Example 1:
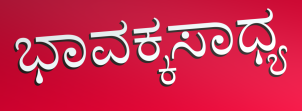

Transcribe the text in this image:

ಭಾವಕ್ಕಸಾಧ್ಯ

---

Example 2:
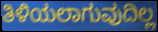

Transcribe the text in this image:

ತಿಳಿಯಲಾಗುವುದಿಲ್ಲ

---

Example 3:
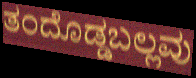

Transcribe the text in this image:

ತಂದೊಡ್ಡಬಲ್ಲವು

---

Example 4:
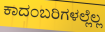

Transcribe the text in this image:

ಕಾದಂಬರಿಗಳಲ್ಲೆಲ್ಲ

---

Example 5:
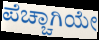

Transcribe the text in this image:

ಪೆಚ್ಚಾಗಿಯೇ